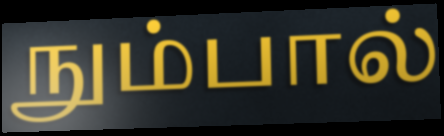
நும்பால்